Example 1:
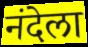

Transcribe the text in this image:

नंदेला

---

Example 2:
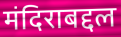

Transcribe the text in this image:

मंदिराबद्दल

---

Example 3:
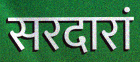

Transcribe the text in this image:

सरदारां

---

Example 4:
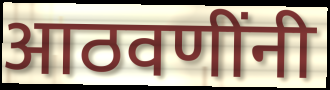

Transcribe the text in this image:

आठवणींनी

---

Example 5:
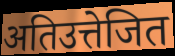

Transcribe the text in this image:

अतिउत्तेजित